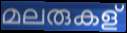
മലരുകള്